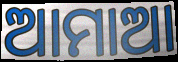
ଆମାଆ